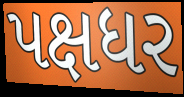
પક્ષધર